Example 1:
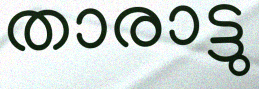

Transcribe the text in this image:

താരാട്ടു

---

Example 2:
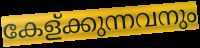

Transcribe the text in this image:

കേള്ക്കുന്നവനും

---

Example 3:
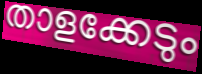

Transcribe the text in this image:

താളക്കേടും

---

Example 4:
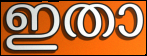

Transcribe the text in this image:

ഇതാ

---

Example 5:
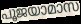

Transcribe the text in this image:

പൂജയാമാസ